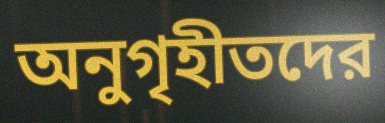
অনুগৃহীতদের